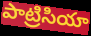
పాట్రిసియా